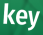
key